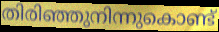
തിരിഞ്ഞുനിന്നുകൊണ്ട്